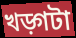
খড়্গটা